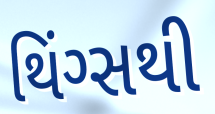
થિંગ્સથી